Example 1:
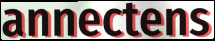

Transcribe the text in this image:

annectens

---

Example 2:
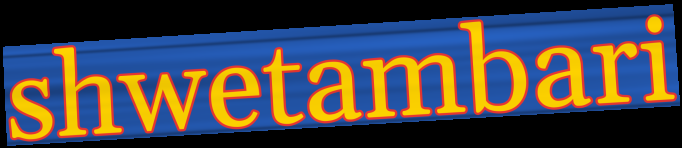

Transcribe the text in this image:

shwetambari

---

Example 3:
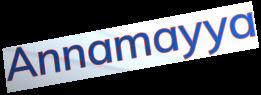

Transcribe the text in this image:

Annamayya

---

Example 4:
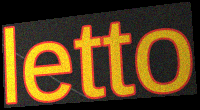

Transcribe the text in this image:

letto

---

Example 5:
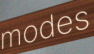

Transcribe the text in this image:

modes